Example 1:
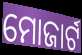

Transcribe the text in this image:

ମୋଜାର୍ଟ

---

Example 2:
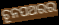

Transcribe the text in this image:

ଚୂନପଥରର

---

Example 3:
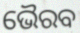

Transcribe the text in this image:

ଭୈରବ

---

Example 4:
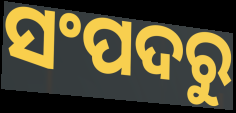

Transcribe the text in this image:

ସଂପଦରୁ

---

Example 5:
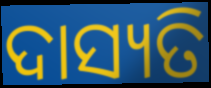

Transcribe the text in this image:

ଦାସ୍ୟତି